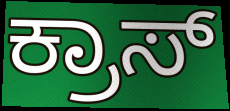
ಕ್ರಾಸ್